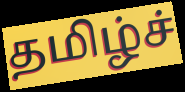
தமிழ்ச்